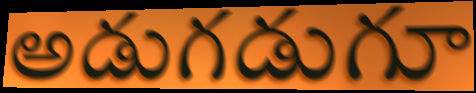
అడుగడుగూ